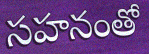
సహనంతో